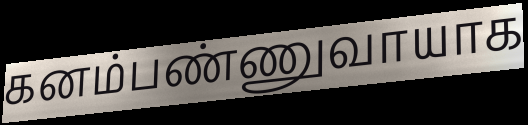
கனம்பண்ணுவாயாக